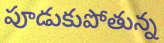
పూడుకుపోతున్న